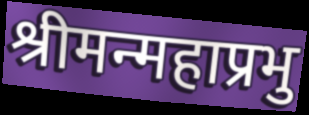
श्रीमन्महाप्रभु